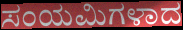
ಸಂಯಮಿಗಳಾದ